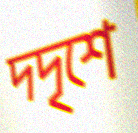
দদৃশে